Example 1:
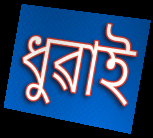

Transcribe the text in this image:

ধুৱাই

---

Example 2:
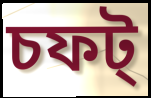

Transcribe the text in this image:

চফট্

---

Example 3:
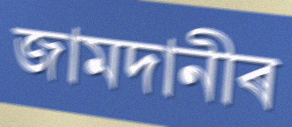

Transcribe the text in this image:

জামদানীৰ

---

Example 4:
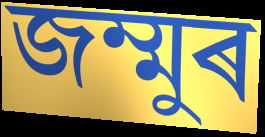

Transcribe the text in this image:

জম্মুৰ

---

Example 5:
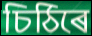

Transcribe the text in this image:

চিঠিৰে